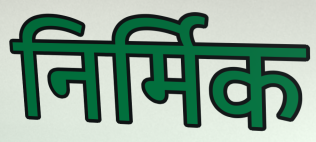
निर्मिक